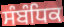
ਸੰਬੰਧਿਕ